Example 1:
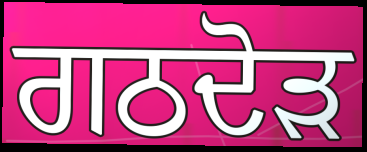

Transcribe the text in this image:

ਗਠਦੋੜ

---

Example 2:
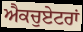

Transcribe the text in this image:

ਐਕਚੁਏਟਰਾਂ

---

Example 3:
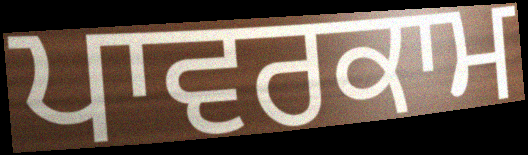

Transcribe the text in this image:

ਪਾਵਰਕਾਮ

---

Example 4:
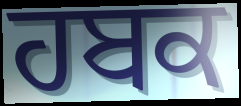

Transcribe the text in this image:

ਹਬਕ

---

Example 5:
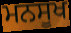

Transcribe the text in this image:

ਮਨਸੂਖ